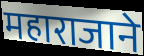
महाराजाने